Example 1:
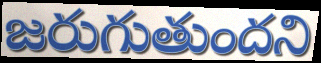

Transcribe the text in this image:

జరుగుతుందని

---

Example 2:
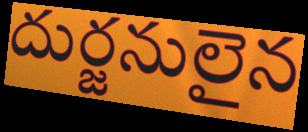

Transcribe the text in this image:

దుర్జనులైన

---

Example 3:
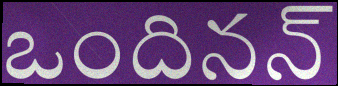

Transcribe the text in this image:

ఒందినన్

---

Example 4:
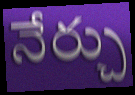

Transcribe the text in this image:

నేర్చు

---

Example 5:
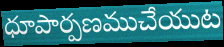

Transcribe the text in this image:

ధూపార్పణముచేయుట